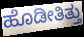
ಹೊಡೀತಿತ್ತು